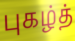
புகழ்த்